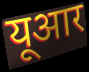
यूआर